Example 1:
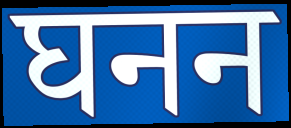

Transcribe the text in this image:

घनन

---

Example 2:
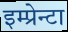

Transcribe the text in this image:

इम्प्रेन्टा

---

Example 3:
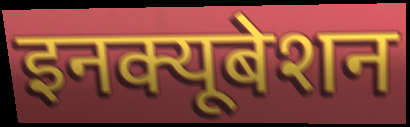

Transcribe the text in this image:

इनक्यूबेशन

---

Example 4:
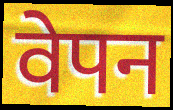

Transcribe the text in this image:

वेपन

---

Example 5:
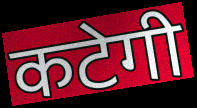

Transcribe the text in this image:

कटेगी